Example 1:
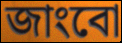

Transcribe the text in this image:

জাংবো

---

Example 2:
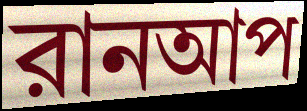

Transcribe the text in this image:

রানআপ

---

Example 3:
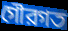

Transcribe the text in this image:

গৌরগত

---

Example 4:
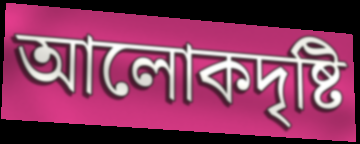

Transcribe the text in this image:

আলোকদৃষ্টি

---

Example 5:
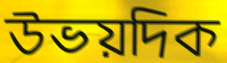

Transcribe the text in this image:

উভয়দিক